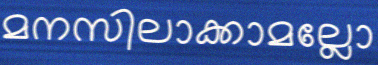
മനസിലാക്കാമല്ലോ